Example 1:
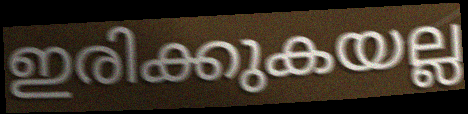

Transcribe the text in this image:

ഇരിക്കുകയല്ല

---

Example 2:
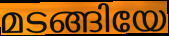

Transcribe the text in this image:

മടങ്ങിയേ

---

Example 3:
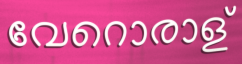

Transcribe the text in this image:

വേറൊരാള്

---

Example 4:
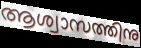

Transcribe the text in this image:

ആശ്വാസത്തിനു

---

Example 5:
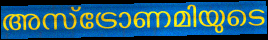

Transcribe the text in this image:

അസ്ട്രോണമിയുടെ